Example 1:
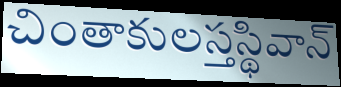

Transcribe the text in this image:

చింతాకులస్తస్థివాన్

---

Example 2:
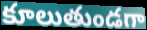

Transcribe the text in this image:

కూలుతుండగా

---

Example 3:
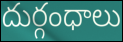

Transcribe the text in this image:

దుర్గంధాలు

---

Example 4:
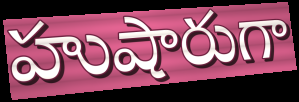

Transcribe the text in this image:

హుషారుగా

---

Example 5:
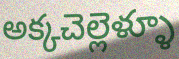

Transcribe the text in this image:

అక్కచెల్లెళ్ళూ